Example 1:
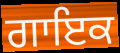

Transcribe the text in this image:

ਗਾਇਕ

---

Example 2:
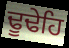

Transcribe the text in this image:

ਢੂਢੇਹਿ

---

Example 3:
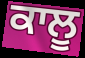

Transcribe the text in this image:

ਕਾਲੂ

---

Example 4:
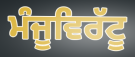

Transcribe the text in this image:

ਮੰਜੂਵਿਰੱਟੂ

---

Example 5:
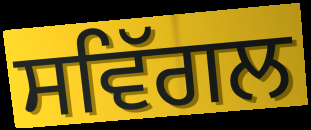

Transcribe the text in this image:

ਸਵਿੱਗਲ